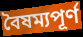
বৈষম্যপূর্ণ